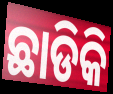
ଛାଡିକି